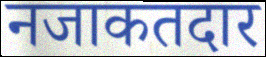
नजाकतदार